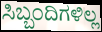
ಸಿಬ್ಬಂದಿಗಳಿಲ್ಲ